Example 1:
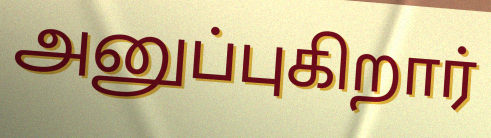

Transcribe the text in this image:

அனுப்புகிறார்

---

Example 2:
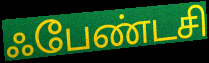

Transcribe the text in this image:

ஃபேண்டசி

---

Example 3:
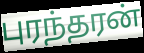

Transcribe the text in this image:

புரந்தரன்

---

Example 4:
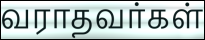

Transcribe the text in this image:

வராதவர்கள்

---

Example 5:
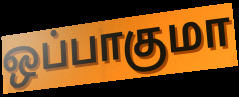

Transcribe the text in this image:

ஒப்பாகுமா